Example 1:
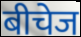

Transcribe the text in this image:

बीचेज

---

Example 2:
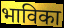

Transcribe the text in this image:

भाविका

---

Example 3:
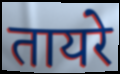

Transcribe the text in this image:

तायरे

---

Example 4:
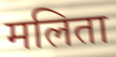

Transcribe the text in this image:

मलिता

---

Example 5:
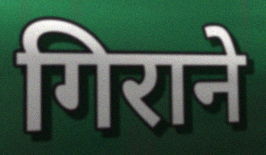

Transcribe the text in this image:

गिराने